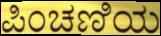
ಪಿಂಚಣಿಯ